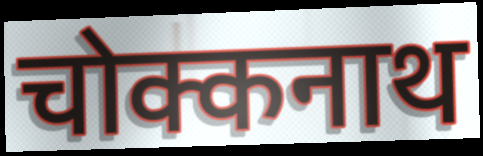
चोक्कनाथ